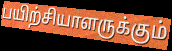
பயிற்சியாளருக்கும்